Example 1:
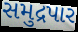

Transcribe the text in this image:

સમુદ્રપાર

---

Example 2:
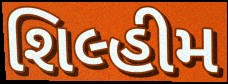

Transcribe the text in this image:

શિલ્હીમ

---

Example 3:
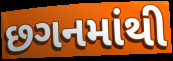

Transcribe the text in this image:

છગનમાંથી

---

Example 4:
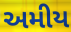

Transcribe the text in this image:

અમીય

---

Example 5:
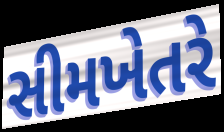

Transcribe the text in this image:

સીમખેતરે